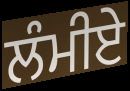
ਲੰਮੀਏ